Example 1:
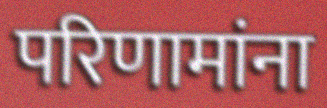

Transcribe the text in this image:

परिणामांना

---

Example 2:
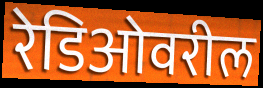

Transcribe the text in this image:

रेडिओवरील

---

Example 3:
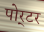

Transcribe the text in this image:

पोर्टर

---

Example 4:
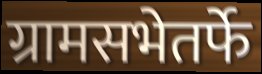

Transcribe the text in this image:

ग्रामसभेतर्फे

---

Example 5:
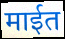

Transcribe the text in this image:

माईत